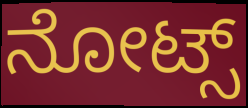
ನೋಟ್ಸ್